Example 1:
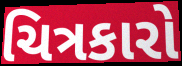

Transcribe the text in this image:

ચિત્રકારો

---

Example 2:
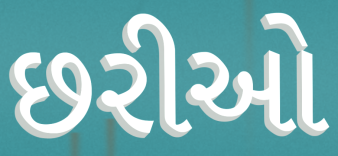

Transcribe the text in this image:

છરીઓ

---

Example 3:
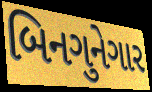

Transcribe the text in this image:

બિનગુનેગાર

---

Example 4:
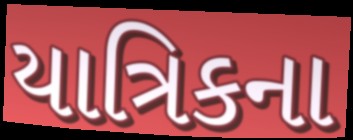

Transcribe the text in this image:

યાત્રિકના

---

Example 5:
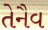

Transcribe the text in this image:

તેનૈવ